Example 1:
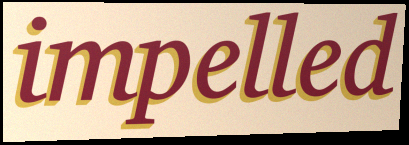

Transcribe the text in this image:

impelled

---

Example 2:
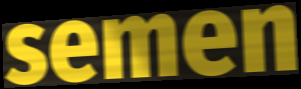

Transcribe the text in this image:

semen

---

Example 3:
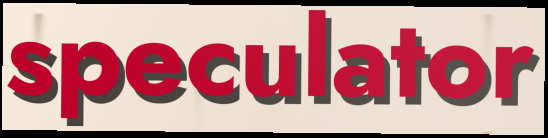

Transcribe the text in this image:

speculator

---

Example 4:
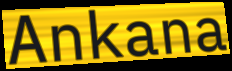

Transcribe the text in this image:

Ankana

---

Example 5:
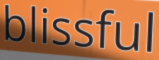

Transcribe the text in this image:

blissful